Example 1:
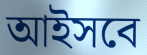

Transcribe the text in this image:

আইসবে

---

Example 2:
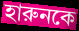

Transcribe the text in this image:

হারুনকে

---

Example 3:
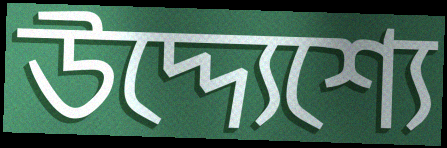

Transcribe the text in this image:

উদ্দ্যেশ্যে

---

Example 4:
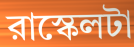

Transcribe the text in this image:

রাস্কেলটা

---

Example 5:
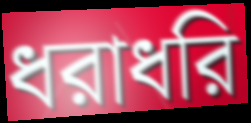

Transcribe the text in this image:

ধরাধরি